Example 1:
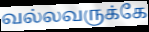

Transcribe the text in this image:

வல்லவருக்கே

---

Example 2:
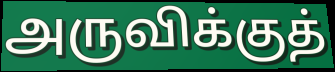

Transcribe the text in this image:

அருவிக்குத்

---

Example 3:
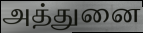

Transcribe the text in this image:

அத்துனை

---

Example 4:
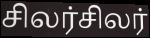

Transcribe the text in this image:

சிலர்சிலர்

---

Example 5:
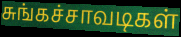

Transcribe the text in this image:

சுங்கச்சாவடிகள்